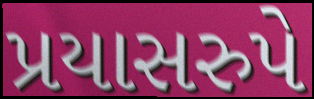
પ્રયાસરુપે